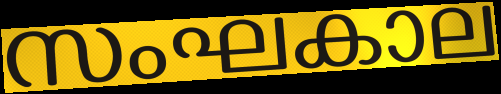
സംഘകാല